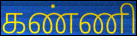
கண்ணி